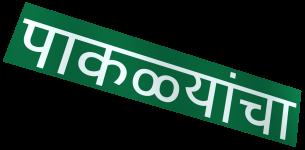
पाकळ्यांचा